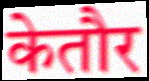
केतौर